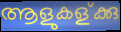
ആളുകള്ക്കു